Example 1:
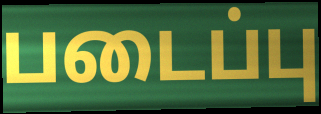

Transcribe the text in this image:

படைப்பு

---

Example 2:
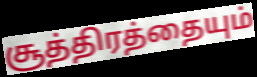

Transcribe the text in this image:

சூத்திரத்தையும்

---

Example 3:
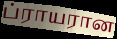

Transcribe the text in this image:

ப்ராயரான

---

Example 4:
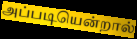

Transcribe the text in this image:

அப்படியென்றால்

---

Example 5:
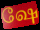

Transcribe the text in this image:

ஷே